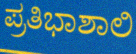
ಪ್ರತಿಭಾಶಾಲಿ